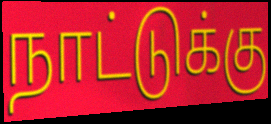
நாட்டுக்கு